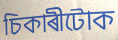
চিকাৰীটোক